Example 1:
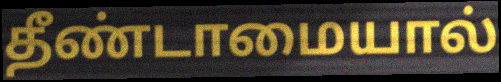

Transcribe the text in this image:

தீண்டாமையால்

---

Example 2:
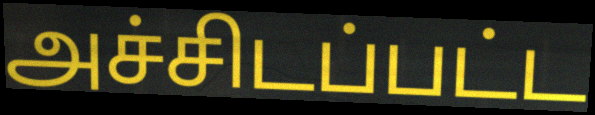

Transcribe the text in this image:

அச்சிடப்பட்ட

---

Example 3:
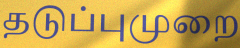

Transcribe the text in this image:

தடுப்புமுறை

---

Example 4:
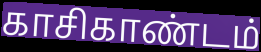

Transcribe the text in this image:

காசிகாண்டம்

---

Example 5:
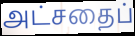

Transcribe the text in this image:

அட்சதைப்